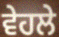
ਵੇਹਲੇ